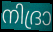
നിദ്രാ